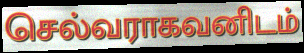
செல்வராகவனிடம்